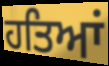
ਹਤਿਆਂ